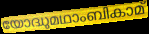
യോദ്ധുമഥാംബികാമ്